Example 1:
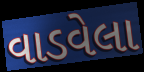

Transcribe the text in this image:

વાડવેલા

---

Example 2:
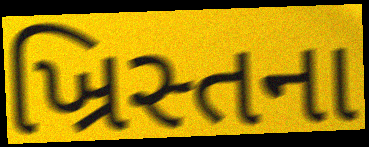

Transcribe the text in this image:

ખ્રિસ્તના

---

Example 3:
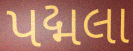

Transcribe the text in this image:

પદ્મલા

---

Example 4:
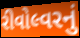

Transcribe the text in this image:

રીવોલ્વરનું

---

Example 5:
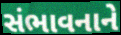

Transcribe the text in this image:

સંભાવનાને